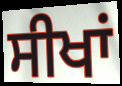
ਸੀਖਾਂ